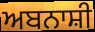
ਅਬਨਾਸ਼ੀ